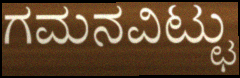
ಗಮನವಿಟ್ಟು